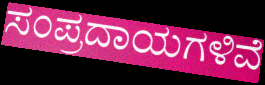
ಸಂಪ್ರದಾಯಗಳಿವೆ